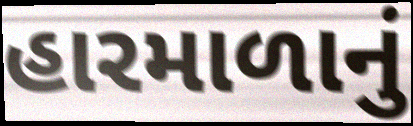
હારમાળાનું